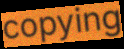
copying